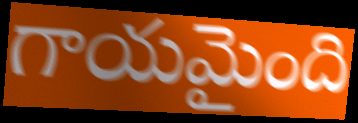
గాయమైంది